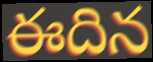
ఈదిన